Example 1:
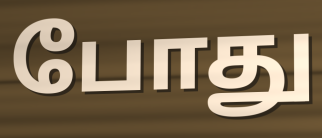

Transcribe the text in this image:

போது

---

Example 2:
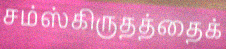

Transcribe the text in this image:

சம்ஸ்கிருதத்தைக்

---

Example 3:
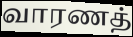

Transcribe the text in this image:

வாரணத்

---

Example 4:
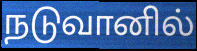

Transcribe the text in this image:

நடுவானில்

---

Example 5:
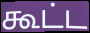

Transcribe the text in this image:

கூட்ட